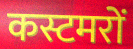
कस्टमरों